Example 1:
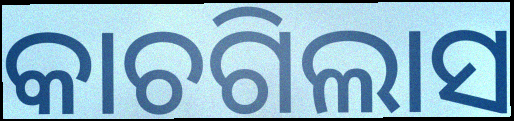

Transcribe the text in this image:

କାଚଗିଲାସ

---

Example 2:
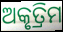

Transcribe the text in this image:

ଅକୃତ୍ରିମ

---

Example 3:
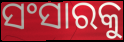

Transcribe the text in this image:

ସଂସାରକୁ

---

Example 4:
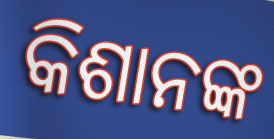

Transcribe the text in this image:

କିଶାନଙ୍କ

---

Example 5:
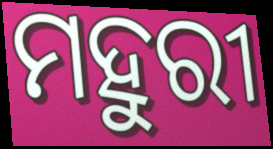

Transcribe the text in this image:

ମହୁରୀ